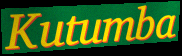
Kutumba